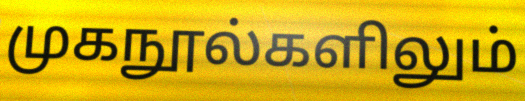
முகநூல்களிலும்